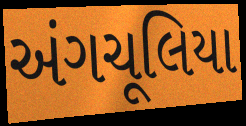
અંગચૂલિયા